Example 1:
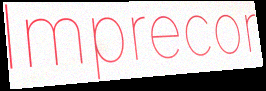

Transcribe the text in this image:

Imprecor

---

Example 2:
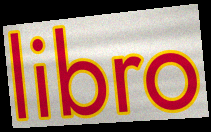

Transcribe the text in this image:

libro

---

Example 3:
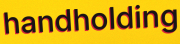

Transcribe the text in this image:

handholding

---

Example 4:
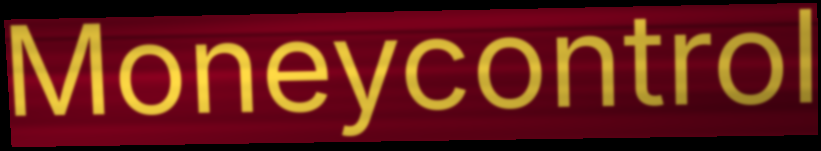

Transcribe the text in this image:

Moneycontrol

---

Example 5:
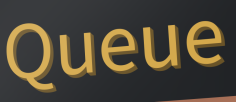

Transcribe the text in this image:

Queue